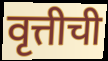
वृत्तीची